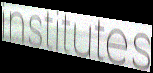
institutes